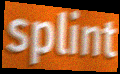
splint